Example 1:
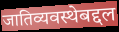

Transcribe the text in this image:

जातिव्यवस्थेबद्दल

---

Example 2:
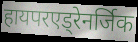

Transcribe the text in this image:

हायपरएड्रेनर्जिक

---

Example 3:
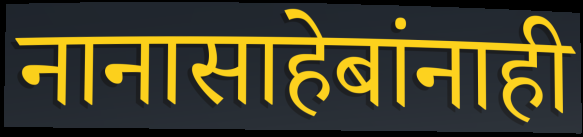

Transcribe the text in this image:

नानासाहेबांनाही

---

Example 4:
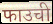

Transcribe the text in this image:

फाउची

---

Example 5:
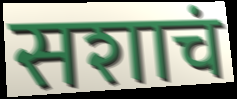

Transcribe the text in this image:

सशाचं